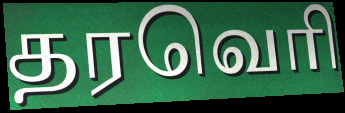
தரவெரி